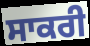
ਸਾਕਰੀ